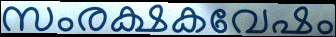
സംരക്ഷകവേഷം